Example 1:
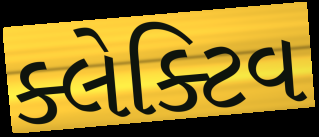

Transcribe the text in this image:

ક્લેક્ટિવ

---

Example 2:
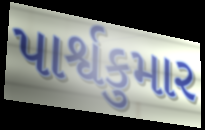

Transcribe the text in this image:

પાર્શ્વકુમાર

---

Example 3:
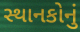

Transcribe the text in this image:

સ્થાનકોનું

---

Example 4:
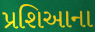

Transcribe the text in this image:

પ્રશિઆના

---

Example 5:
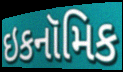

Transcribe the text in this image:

ઇકનૉમિક